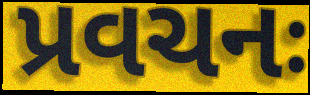
પ્રવચનઃ